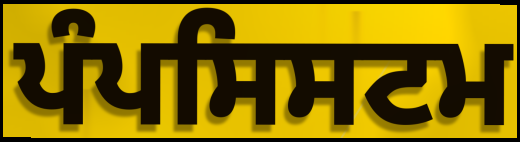
ਪੰਪਸਿਸਟਮ